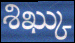
శిఖ్కు